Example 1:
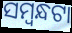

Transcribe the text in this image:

ସମ୍ବନ୍ଧଟା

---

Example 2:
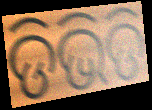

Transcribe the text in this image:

ଡିଭିଡି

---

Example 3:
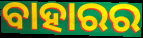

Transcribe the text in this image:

ବାହାରର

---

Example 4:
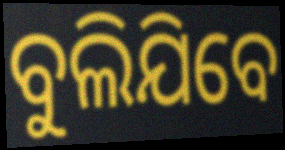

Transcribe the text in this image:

ବୁଲିଯିବେ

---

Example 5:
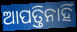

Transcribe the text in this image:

ଆପତ୍ତିନାହିଁ